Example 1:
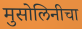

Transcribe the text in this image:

मुसोलिनीचा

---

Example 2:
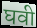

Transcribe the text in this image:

घवी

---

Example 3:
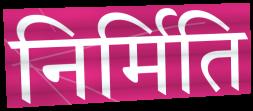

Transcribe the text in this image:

निर्मिति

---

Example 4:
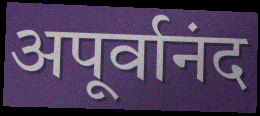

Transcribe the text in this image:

अपूर्वानंद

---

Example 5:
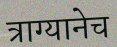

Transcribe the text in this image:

त्राग्यानेच